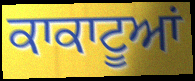
ਕਾਕਾਟੂਆਂ